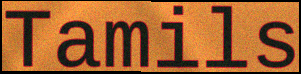
Tamils